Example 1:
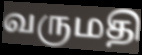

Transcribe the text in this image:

வருமதி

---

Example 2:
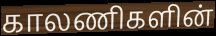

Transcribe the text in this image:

காலணிகளின்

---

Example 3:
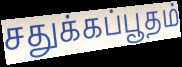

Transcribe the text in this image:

சதுக்கப்பூதம்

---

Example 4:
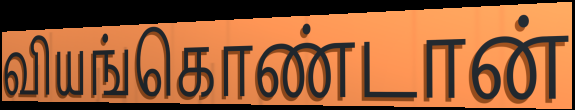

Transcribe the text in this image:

வியங்கொண்டான்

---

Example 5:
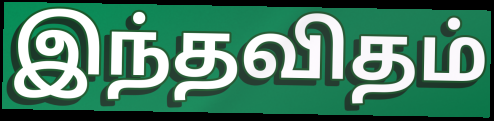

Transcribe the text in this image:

இந்தவிதம்